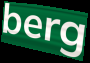
berg